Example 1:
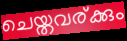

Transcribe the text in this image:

ചെയ്തവര്ക്കും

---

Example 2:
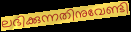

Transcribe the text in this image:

ലഭിക്കുന്നതിനുവേണ്ടി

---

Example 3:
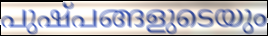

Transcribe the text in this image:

പുഷ്പങ്ങളുടെയും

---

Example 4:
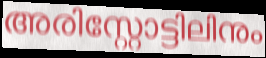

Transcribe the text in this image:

അരിസ്റ്റോട്ടിലിനും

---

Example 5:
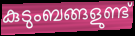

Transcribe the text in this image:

കുടുംബങ്ങളുണ്ട്